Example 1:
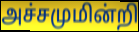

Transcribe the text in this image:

அச்சமுமின்றி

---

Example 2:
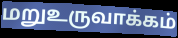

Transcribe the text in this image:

மறுஉருவாக்கம்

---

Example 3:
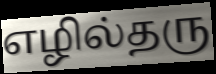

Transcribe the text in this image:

எழில்தரு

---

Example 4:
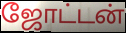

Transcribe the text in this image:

ஜோட்டன்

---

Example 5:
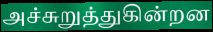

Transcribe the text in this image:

அச்சுறுத்துகின்றன